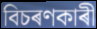
বিচৰণকাৰী